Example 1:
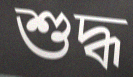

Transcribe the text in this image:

শুদ্ধ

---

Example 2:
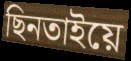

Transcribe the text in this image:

ছিনতাইয়ে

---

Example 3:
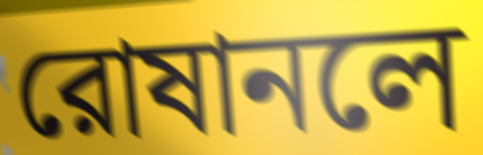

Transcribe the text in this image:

রোষানলে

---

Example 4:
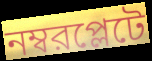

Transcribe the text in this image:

নম্বরপ্লেটে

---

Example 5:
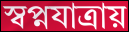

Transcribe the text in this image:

স্বপ্নযাত্রায়